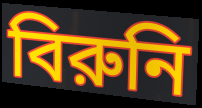
বিরুনি